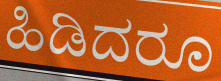
ಹಿಡಿದರೂ